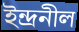
ইন্দ্ৰনীল